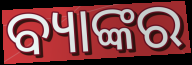
ବ୍ୟାଙ୍କର